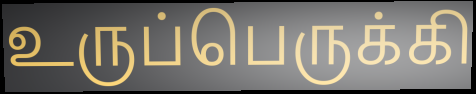
உருப்பெருக்கி